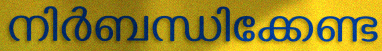
നിർബന്ധിക്കേണ്ട